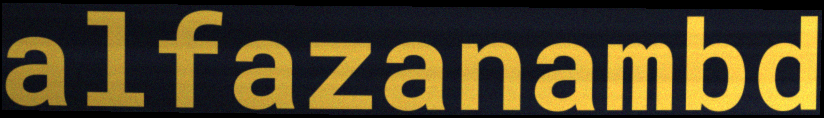
alfazanambd